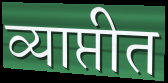
व्याप्तीत